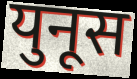
युनूस